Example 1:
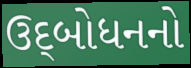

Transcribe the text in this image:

ઉદ્‌બોધનનો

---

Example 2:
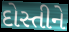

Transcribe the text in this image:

દોસ્તીને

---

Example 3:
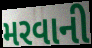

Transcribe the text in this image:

મરવાની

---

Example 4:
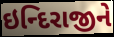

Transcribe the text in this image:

ઇન્દિરાજીને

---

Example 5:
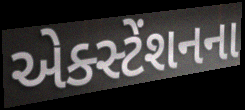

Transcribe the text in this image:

એક્સ્ટેંશનના